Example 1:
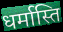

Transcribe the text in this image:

धर्मास्ति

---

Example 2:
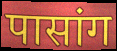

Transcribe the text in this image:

पासांग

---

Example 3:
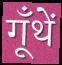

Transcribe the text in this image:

गूँथें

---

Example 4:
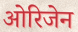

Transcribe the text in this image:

ओरिजेन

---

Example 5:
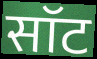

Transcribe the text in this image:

सॉट